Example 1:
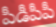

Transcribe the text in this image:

పీడీపీపీ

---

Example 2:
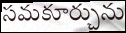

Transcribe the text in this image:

సమకూర్చును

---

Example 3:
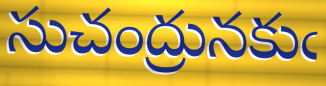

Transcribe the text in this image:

సుచంద్రునకుఁ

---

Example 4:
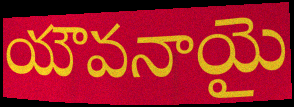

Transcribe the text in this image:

యౌవనాయై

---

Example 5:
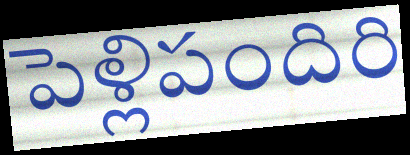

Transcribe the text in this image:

పెళ్లిపందిరి